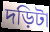
দড়িটা